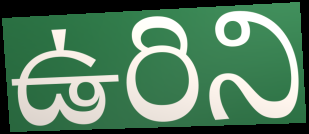
ఉరిని